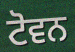
ਟੋਵਨ